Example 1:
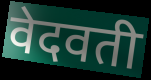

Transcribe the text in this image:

वेदवती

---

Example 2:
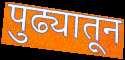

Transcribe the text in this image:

पुढ्यातून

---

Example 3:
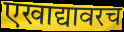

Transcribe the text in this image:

एखाद्यावरच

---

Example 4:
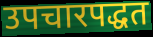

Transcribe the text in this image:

उपचारपद्धत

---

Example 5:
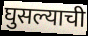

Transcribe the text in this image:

घुसल्याची